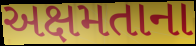
અક્ષમતાના